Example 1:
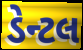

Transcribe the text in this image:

ડેન્ટલ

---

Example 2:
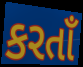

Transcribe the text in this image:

કરતાઁ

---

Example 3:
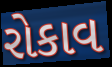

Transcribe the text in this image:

રોકાવ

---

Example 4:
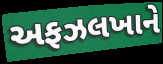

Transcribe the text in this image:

અફઝલખાને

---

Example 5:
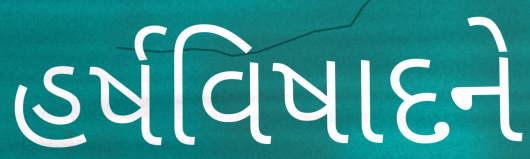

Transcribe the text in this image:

હર્ષવિષાદને